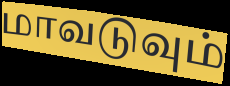
மாவடுவும்